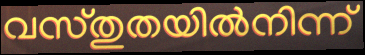
വസ്തുതയിൽനിന്ന്